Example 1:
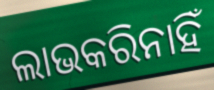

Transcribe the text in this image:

ଲାଭକରିନାହିଁ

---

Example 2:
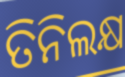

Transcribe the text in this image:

ତିନିଲକ୍ଷ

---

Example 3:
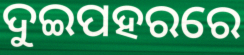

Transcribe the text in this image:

ଦୁଇପହରରେ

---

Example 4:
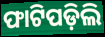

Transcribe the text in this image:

ଫାଟିପଡ଼ିଲି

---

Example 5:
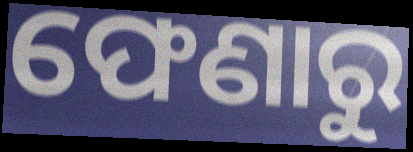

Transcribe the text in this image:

ଫେଣାରୁ